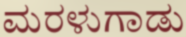
ಮರಳುಗಾಡು